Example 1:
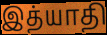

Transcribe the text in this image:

இத்யாதி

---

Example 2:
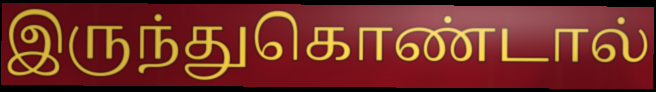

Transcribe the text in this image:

இருந்துகொண்டால்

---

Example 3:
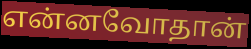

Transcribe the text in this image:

என்னவோதான்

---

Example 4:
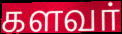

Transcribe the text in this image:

களவர்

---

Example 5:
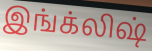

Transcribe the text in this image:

இங்க்லிஷ்